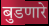
बुडणारे